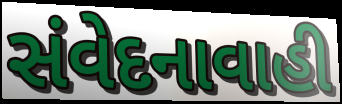
સંવેદનાવાહી